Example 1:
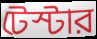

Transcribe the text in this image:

টেস্টার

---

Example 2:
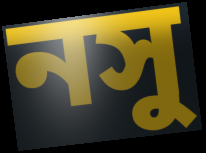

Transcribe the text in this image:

নসু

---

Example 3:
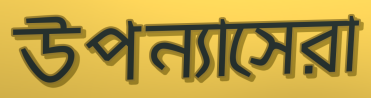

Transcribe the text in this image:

উপন্যাসেরা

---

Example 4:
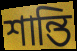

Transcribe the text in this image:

শান্তি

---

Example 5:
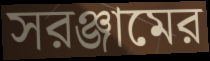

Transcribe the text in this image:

সরঞ্জামের